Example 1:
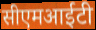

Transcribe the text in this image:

सीएमआईटी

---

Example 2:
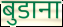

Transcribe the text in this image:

बुडाना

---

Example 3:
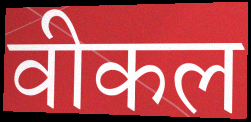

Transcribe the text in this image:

वीकल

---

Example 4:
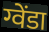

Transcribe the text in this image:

ग्वेंडा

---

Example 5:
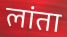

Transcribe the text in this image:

लांता